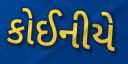
કોઈનીયે